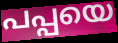
പപ്പയെ